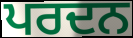
ਪਰਦਨ